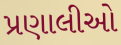
પ્રણાલીઓ